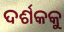
ଦର୍ଶକକୁ